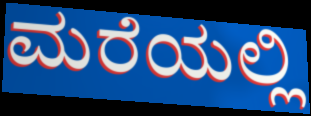
ಮರೆಯಲ್ಲಿ